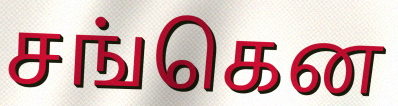
சங்கென